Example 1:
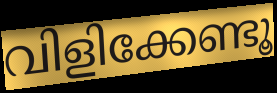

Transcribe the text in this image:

വിളിക്കേണ്ടൂ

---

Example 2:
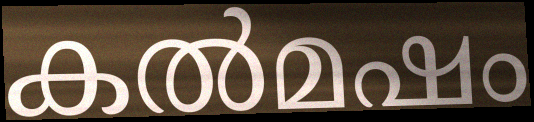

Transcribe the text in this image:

കൽമഷം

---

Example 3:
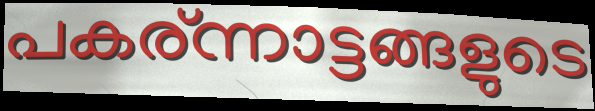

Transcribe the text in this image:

പകര്ന്നാട്ടങ്ങളുടെ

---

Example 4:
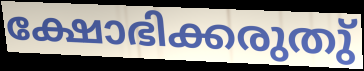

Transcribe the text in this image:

ക്ഷോഭിക്കരുതു്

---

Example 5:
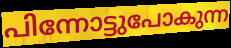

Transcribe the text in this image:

പിന്നോട്ടുപോകുന്ന